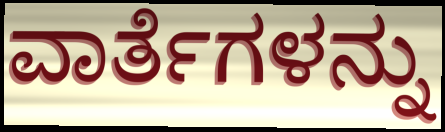
ವಾರ್ತೆಗಳನ್ನು